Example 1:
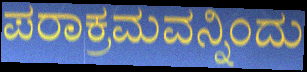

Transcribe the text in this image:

ಪರಾಕ್ರಮವನ್ನಿಂದು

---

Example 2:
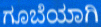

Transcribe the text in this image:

ಗೂಬೆಯಾಗಿ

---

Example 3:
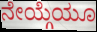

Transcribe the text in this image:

ನೇಯ್ಗೆಯೂ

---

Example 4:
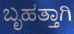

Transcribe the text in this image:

ಬೃಹತ್ತಾಗಿ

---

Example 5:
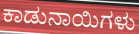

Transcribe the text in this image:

ಕಾಡುನಾಯಿಗಳು